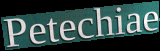
Petechiae